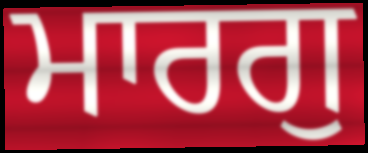
ਮਾਰਗੁ